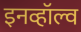
इनव्हॉल्व